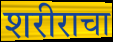
शरीराचा